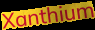
Xanthium